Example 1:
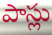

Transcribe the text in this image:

పాస్లు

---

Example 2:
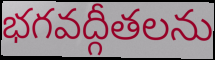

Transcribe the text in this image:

భగవద్గీతలను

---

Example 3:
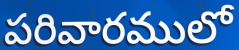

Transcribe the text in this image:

పరివారములో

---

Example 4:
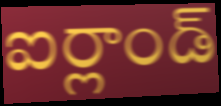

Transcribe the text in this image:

ఐర్లాండ్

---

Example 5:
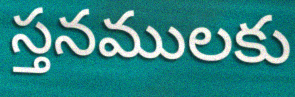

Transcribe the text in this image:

స్తనములకు